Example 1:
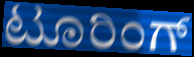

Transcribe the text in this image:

ಟೂರಿಂಗ್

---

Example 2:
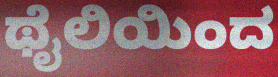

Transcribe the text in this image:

ಥೈಲಿಯಿಂದ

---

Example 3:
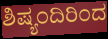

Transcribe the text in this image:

ಶಿಷ್ಯಂದಿರಿಂದ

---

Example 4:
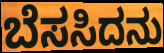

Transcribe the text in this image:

ಬೆಸಸಿದನು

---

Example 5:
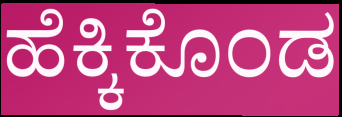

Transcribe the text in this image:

ಹೆಕ್ಕಿಕೊಂಡ